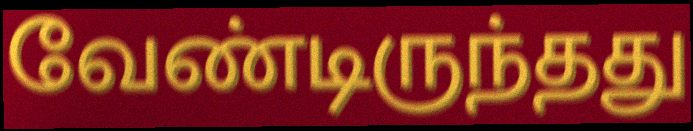
வேண்டிருந்தது